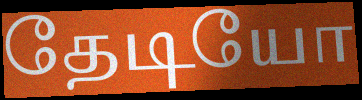
தேடியோ